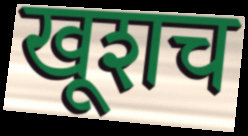
खूशच